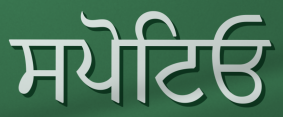
ਸਪੋਟਿਓ